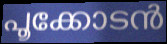
പൂക്കോടൻ